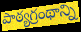
పాఠ్యగ్రంథాన్ని